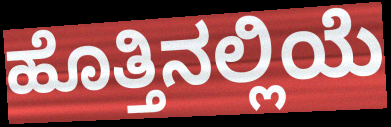
ಹೊತ್ತಿನಲ್ಲಿಯೆ